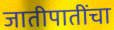
जातीपातींचा